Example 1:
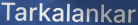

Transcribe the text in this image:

Tarkalankar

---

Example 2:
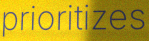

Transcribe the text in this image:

prioritizes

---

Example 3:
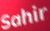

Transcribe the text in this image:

Sahir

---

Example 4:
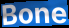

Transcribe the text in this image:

Bone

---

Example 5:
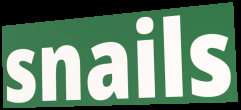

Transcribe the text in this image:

snails